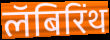
लॅबिरिंथ